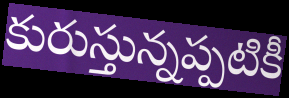
కురుస్తున్నప్పటికీ